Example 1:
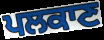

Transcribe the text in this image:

ਪਲਕਾਣ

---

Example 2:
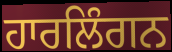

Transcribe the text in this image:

ਹਾਰਲਿੰਗਨ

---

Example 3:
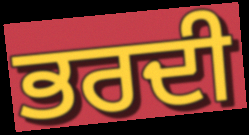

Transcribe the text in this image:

ਭਰਦੀ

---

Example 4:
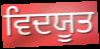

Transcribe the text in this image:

ਵਿਦਯੂਤ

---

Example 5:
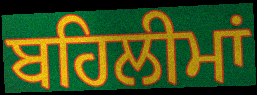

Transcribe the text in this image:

ਬਹਿਲੀਮਾਂ